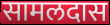
सामलदास